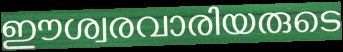
ഈശ്വരവാരിയരുടെ